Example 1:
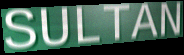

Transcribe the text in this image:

SULTAN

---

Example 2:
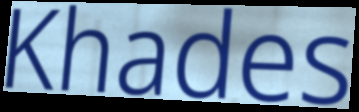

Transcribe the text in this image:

Khades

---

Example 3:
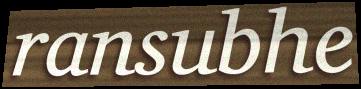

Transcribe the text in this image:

ransubhe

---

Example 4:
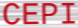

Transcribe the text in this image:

CEPI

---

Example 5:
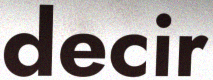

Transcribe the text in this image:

decir